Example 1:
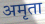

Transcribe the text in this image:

अमृता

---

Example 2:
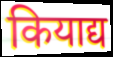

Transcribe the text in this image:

कियाद्य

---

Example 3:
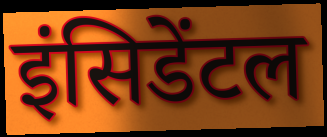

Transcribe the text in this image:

इंसिडेंटल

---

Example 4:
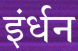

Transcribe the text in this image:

इंर्धन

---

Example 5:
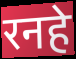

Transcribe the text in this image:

रनहे